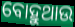
ବୋହୁଥାଉ